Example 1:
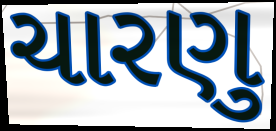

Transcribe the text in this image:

ચારણુ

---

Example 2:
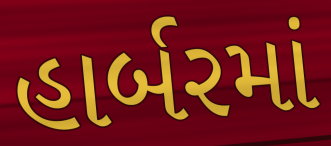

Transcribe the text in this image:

હાર્બરમાં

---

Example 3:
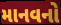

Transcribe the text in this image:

માનવનો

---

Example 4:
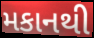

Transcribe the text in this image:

મકાનથી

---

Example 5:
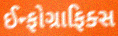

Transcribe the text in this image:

ઈન્ફોગ્રાફિક્સ